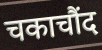
चकाचौंद